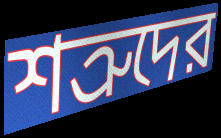
শত্রুদের